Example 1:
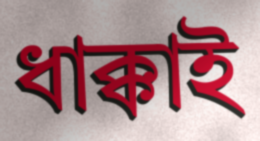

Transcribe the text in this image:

ধাক্কাই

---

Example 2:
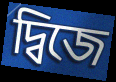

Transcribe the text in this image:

দ্বিজে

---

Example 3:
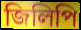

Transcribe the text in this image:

জিলিপি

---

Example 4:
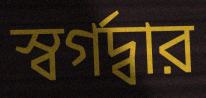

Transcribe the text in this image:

স্বর্গদ্বার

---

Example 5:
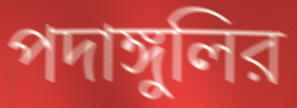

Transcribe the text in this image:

পদাঙ্গুলির